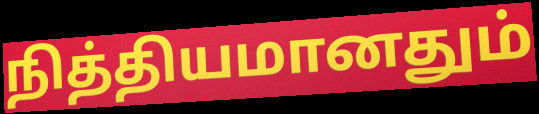
நித்தியமானதும்